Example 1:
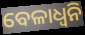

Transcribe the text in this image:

ବେଳାଧ୍ୱନି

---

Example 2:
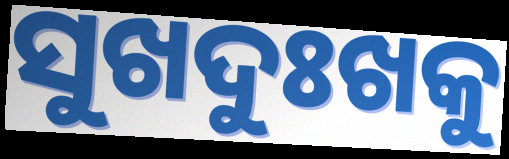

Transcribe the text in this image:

ସୁଖଦୁଃଖକୁ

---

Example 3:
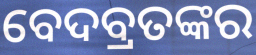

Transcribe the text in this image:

ବେଦବ୍ରତଙ୍କର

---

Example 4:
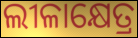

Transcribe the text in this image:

ଲୀଳାକ୍ଷେତ୍ର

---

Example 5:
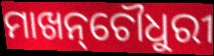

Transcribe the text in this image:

ମାଖନ୍‌ଚୌଧୁରୀ